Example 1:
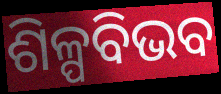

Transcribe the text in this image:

ଶିଳ୍ପବିଭବ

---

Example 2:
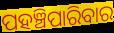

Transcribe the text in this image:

ପହଞ୍ଚିପାରିବାର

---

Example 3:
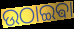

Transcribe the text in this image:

ଉଠାଇଵା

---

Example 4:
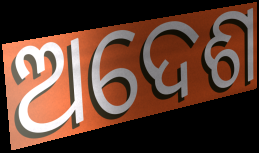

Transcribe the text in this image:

ଅଦେଶ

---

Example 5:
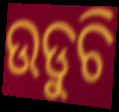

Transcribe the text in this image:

ଉଡୁଚି